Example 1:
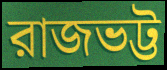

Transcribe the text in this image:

রাজভট্ট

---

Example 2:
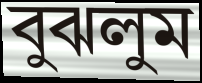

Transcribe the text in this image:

বুঝলুম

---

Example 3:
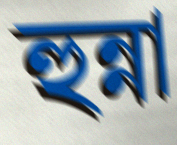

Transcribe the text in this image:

হুন্না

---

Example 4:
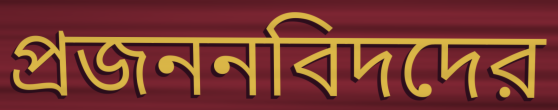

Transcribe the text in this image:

প্রজননবিদদের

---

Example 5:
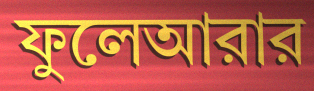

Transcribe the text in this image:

ফুলেআরার